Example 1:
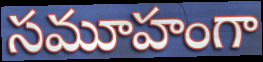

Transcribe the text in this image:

సమూహంగా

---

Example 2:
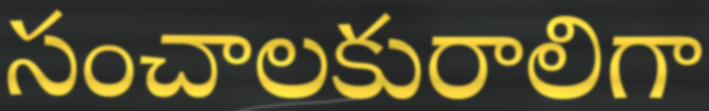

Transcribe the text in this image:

సంచాలకురాలిగా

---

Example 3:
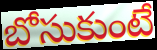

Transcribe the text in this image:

బోసుకుంటే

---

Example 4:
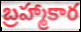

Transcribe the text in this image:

బ్రహ్మాకార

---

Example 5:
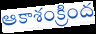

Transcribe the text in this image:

ఆకాశంక్రింద